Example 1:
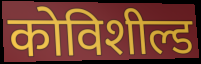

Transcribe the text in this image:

कोविशील्ड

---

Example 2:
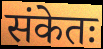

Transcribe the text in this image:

संकेतः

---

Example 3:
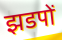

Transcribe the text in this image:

झडपों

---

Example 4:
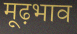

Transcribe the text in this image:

मूढ़भाव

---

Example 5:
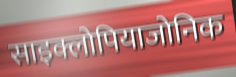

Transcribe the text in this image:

साइक्लोपियाजोनिक